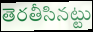
తెరతీసినట్టు